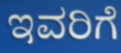
ಇವರಿಗೆ